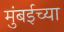
मुंबईच्या